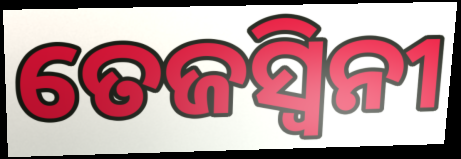
ତେଜସ୍ଵିନୀ